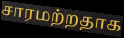
சாரமற்றதாக